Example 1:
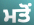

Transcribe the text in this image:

ਮਤੋਂ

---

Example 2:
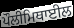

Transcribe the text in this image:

ਪੌਲੀਮਿਥਾਈਲ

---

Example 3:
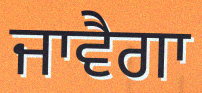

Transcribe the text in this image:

ਜਾਵੈਗਾ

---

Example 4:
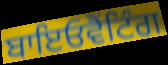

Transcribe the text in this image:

ਬਾਇਓਵੈਂਟਿੰਗ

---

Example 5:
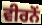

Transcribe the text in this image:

ਵੀਰਨੋਂ